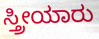
ಸ್ತ್ರೀಯಾರು